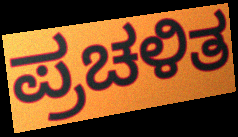
ಪ್ರಚಳಿತ